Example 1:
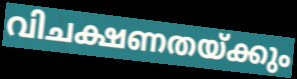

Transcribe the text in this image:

വിചക്ഷണതയ്ക്കും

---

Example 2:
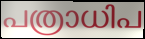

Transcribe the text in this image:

പത്രാധിപ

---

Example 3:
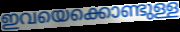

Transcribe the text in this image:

ഇവയെക്കൊണ്ടുള്ള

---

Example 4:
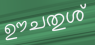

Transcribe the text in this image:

ഊചതുശ്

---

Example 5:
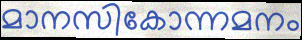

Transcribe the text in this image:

മാനസികോന്നമനം